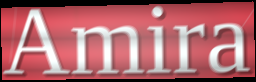
Amira